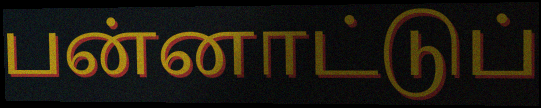
பன்னாட்டுப்